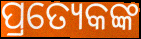
ପ୍ରତ୍ଯେକଙ୍କ